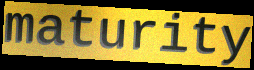
maturity